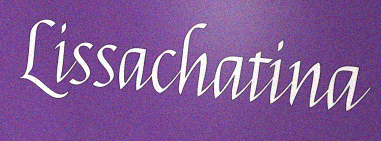
Lissachatina